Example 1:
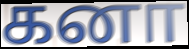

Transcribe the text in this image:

கனா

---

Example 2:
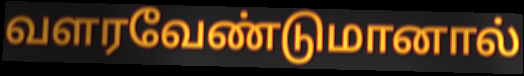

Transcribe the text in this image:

வளரவேண்டுமானால்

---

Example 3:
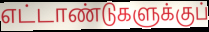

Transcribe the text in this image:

எட்டாண்டுகளுக்குப்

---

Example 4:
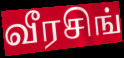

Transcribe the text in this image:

வீரசிங்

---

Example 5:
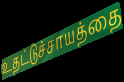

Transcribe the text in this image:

உதட்டுச்சாயத்தை